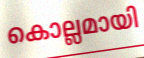
കൊല്ലമായി